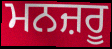
ਮਨਜ਼ਰੂ